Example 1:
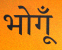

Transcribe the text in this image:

भोगूँ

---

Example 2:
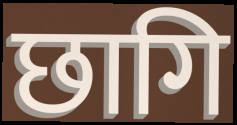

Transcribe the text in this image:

छागि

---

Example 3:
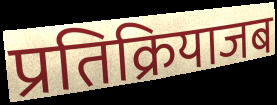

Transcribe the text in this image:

प्रतिक्रियाजब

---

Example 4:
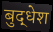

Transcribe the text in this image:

बुद्धेश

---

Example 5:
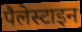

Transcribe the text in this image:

पैलेस्टाइन